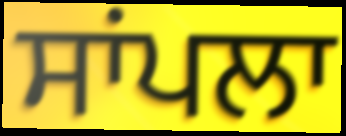
ਸਾਂਪਲਾ